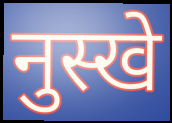
नुस्खे